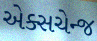
એક્સચેન્જ